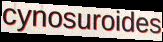
cynosuroides